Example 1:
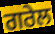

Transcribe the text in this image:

ਗਰੇਲ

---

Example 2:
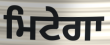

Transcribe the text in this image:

ਮਿਟੇਗਾ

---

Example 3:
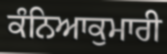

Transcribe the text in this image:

ਕੰਨਿਆਕੁਮਾਰੀ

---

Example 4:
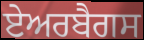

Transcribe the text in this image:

ਏਅਰਬੈਗਸ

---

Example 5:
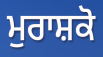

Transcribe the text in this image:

ਮੁਰਾਸ਼ਕੋ